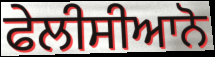
ਫੇਲੀਸੀਆਨੋ